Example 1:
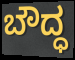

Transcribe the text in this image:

ಬೌದ್ಧ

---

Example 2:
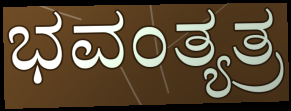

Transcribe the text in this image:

ಭವಂತ್ಯತ್ರ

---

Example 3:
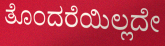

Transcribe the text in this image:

ತೊಂದರೆಯಿಲ್ಲದೇ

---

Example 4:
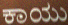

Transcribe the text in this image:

ಕಾಯು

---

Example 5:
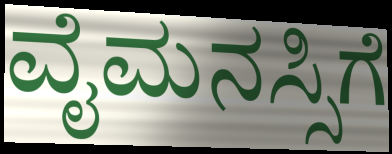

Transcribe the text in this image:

ವೈಮನಸ್ಸಿಗೆ